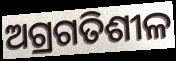
ଅଗ୍ରଗତିଶୀଳ